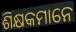
ଶିକ୍ଷକମାନେ